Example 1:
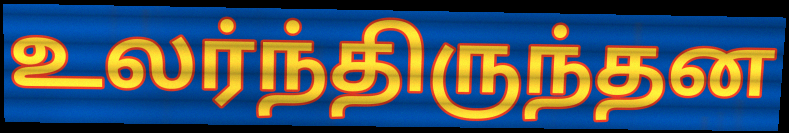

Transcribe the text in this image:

உலர்ந்திருந்தன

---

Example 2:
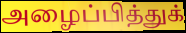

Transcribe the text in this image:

அழைப்பித்துக்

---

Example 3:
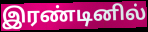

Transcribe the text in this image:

இரண்டினில்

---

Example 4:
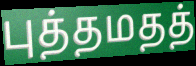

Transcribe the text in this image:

புத்தமதத்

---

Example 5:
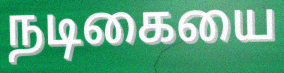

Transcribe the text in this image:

நடிகையை